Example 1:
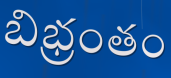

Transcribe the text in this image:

బిభ్రంతం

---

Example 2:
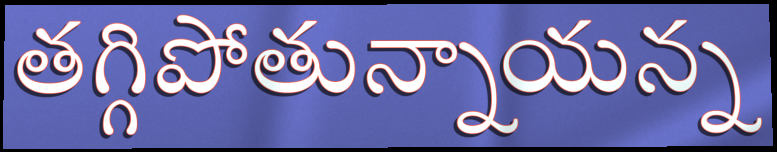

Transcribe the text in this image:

తగ్గిపోతున్నాయన్న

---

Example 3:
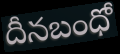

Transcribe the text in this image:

దీనబంధో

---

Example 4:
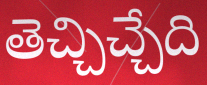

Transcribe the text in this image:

తెచ్చిచ్చేది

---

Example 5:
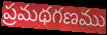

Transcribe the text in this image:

ప్రమథగణము